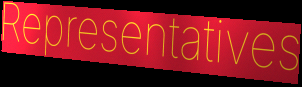
Representatives